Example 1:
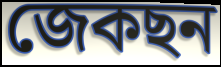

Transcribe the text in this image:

জেকছন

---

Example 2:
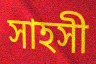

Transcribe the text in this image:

সাহসী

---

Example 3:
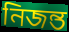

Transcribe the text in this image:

নিজন্ত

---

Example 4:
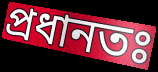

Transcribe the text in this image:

প্ৰধানতঃ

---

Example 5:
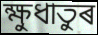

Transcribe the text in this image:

ক্ষুধাতুৰ